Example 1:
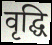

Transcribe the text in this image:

वृद्घि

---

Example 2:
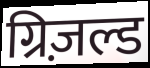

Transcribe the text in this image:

ग्रिज़ल्ड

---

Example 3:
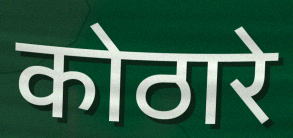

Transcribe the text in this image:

कोठारे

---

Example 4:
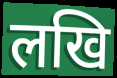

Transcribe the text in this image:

लखि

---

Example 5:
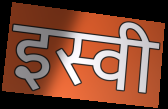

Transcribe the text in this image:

इस्वी